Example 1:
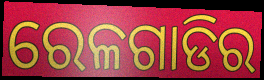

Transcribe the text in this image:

ରେଳଗାଡିର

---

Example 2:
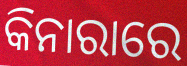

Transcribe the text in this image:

କିନାରାରେ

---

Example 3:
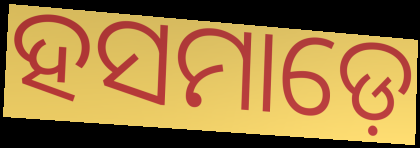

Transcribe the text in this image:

ହସମାଡ଼େ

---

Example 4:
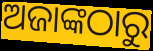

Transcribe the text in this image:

ଅଜାଙ୍କଠାରୁ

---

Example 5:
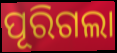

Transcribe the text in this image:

ପୂରିଗଲା